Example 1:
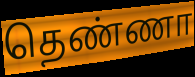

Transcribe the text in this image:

தெண்ணா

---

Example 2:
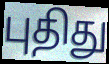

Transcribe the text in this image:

புதிது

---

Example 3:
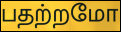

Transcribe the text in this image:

பதற்றமோ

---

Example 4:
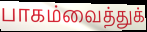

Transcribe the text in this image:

பாகம்வைத்துக்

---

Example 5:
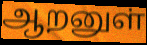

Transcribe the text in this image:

ஆறனுள்